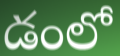
డంలో